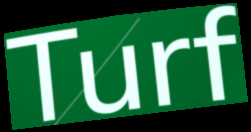
Turf